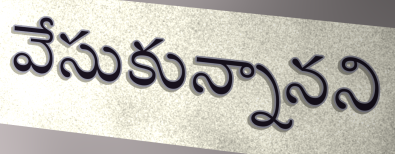
వేసుకున్నానని